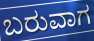
ಬರುವಾಗ